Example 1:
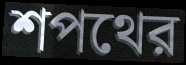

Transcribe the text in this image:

শপথের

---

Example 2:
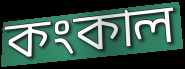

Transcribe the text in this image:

কংকাল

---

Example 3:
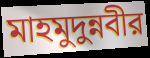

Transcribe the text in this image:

মাহমুদুন্নবীর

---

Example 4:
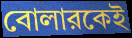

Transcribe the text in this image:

বোলারকেই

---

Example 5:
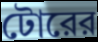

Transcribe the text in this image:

টোরের